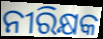
ନୀରିକ୍ଷକ